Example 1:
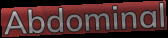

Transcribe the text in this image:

Abdominal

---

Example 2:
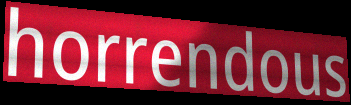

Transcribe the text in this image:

horrendous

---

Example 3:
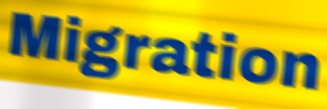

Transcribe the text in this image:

Migration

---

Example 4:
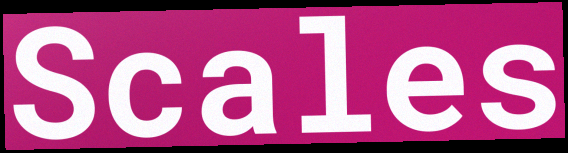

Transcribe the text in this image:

Scales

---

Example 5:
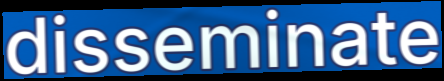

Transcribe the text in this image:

disseminate